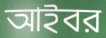
আইবর